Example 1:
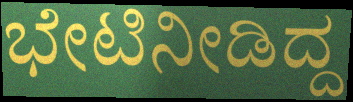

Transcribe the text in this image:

ಭೇಟಿನೀಡಿದ್ದ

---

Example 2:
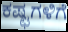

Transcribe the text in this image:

ಕಷ್ಟಗಳಿಗೆ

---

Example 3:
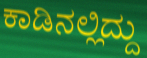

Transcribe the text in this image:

ಕಾಡಿನಲ್ಲಿದ್ದು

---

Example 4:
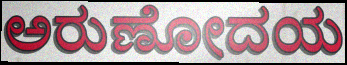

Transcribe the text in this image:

ಅರುಣೋದಯ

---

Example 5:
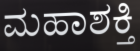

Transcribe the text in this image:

ಮಹಾಶಕ್ತಿ